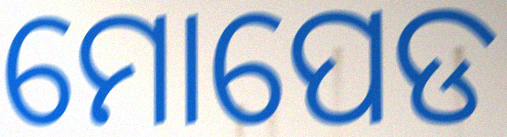
ମୋପେଡ